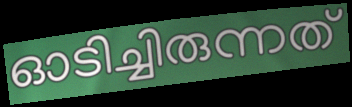
ഓടിച്ചിരുന്നത്